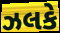
ઝલકે